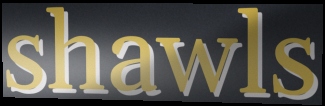
shawls